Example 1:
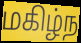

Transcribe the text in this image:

மகிழ்ந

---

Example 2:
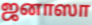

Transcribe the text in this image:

ஜனாஸா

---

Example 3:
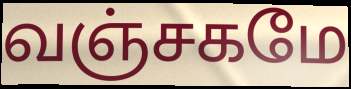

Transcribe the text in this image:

வஞ்சகமே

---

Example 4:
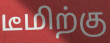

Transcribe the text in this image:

டீமிற்கு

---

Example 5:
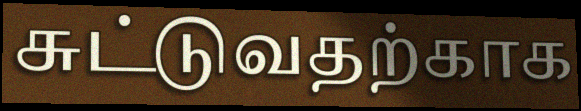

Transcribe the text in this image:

சுட்டுவதற்காக